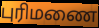
புரிமணை